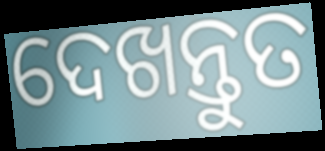
ଦେଖନ୍ତୁତ